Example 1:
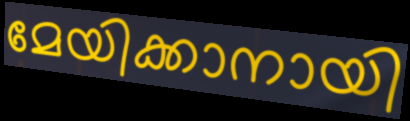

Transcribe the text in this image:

മേയിക്കാനായി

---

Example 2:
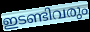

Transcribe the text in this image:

ഇടണ്ടിവരും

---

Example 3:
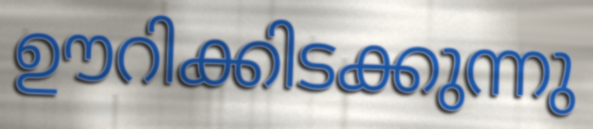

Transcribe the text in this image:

ഊറിക്കിടക്കുന്നു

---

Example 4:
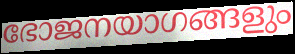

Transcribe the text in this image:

ഭോജനയാഗങ്ങളും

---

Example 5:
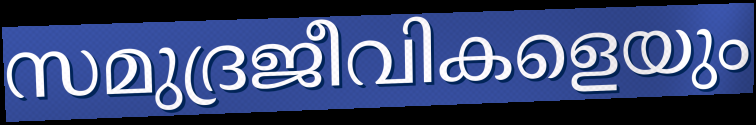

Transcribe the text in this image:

സമുദ്രജീവികളെയും